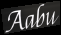
Aabu